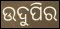
ଉଦୁପିର